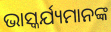
ଭାସ୍କର୍ଯ୍ୟମାନଙ୍କ